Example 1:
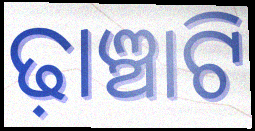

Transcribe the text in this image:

ଢ଼ାଞ୍ଚାଟି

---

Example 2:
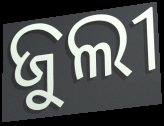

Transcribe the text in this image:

ଜୁଲୀ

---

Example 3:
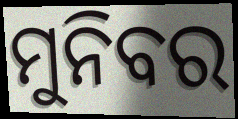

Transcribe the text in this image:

ମୁନିବର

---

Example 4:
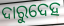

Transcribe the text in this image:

ଦାରୁଦେହ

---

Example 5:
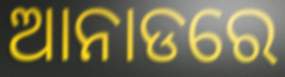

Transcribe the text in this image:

ଆନାଡରେ